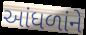
આંધળાંને